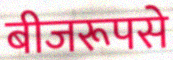
बीजरूपसे